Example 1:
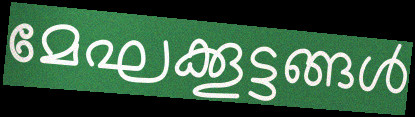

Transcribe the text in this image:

മേഘക്കൂട്ടങ്ങൾ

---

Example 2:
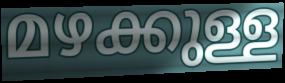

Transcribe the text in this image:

മഴക്കുള്ള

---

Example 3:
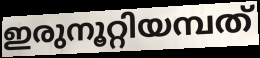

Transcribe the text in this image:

ഇരുനൂറ്റിയമ്പത്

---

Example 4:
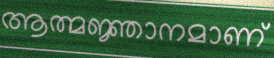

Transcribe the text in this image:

ആത്മജ്ഞാനമാണ്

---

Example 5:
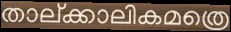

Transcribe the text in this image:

താല്ക്കാലികമത്രെ